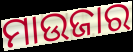
ମାଉଜାର